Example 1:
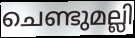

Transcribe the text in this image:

ചെണ്ടുമല്ലി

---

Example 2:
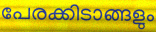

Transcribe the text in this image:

പേരക്കിടാങ്ങളും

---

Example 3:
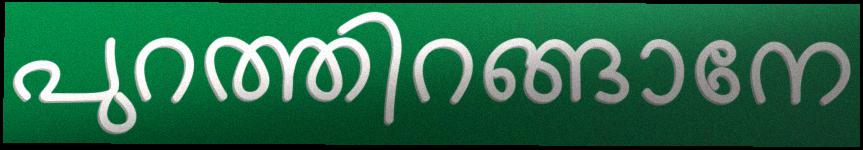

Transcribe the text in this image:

പുറത്തിറങ്ങാനേ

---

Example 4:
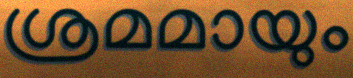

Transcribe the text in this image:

ശ്രമമായും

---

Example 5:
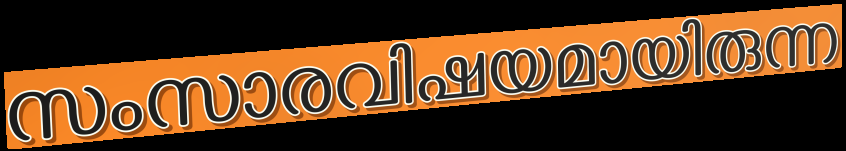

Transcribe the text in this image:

സംസാരവിഷയമായിരുന്ന